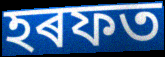
হৰফত